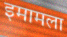
इमामला